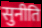
सुनीति